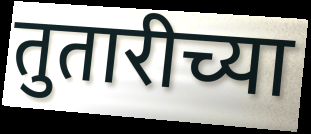
तुतारीच्या